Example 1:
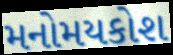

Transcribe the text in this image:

મનોમયકોશ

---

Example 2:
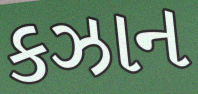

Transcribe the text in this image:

કઝાન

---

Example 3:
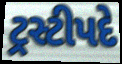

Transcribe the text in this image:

ટ્રસ્ટીપદે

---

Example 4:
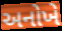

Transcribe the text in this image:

અનોખે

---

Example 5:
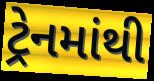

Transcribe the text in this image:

ટ્રેનમાંથી